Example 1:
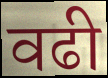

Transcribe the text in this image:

वढी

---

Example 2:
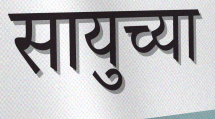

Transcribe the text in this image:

सायुच्या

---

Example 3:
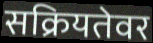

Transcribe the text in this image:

सक्रियतेवर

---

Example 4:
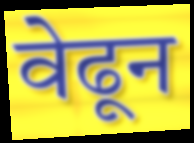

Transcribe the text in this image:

वेढून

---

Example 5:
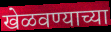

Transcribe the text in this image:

खेळवण्याच्या